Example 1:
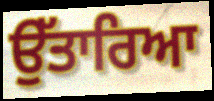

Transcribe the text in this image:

ਉੱਤਾਰਿਆ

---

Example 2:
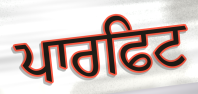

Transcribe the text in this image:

ਪਾਰਫਿਟ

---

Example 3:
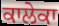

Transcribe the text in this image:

ਕਾਲੇਕਾ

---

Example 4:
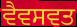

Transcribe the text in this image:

ਵੈਵਸਵਤ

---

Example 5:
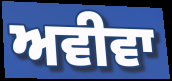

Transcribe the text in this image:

ਅਵੀਵਾ